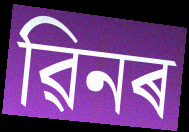
ৱিনৰ